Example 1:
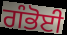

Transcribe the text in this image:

ਗੰਭੋਈ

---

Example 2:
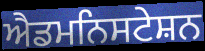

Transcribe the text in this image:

ਐਡਮਨਿਸਟੇਸ਼ਨ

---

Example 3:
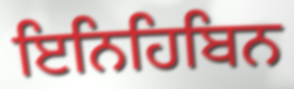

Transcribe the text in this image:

ਇਨਿਹਿਬਿਨ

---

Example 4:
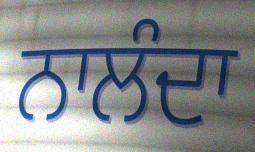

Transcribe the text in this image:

ਨਾਲੰਦਾ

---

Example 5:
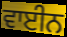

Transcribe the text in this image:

ਵਾਈਨ